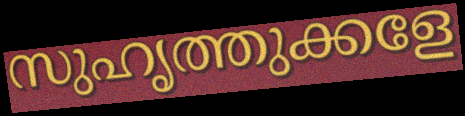
സുഹൃത്തുക്കളേ